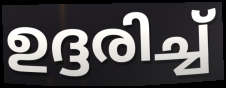
ഉദ്ദരിച്ച്